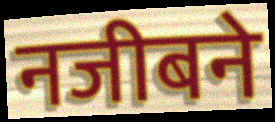
नजीबने